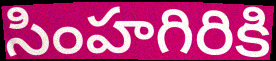
సింహగిరికి